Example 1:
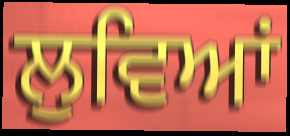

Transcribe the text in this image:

ਲੁਵਿਆਂ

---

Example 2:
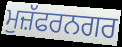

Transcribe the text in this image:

ਮੁਜ਼ੱਫਰਨਗਰ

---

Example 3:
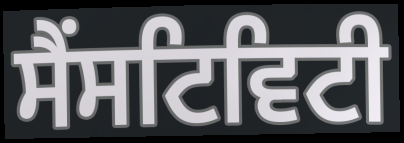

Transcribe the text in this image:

ਸੈਂਸਟਿਵਿਟੀ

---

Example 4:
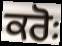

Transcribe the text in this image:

ਕਰੋਃ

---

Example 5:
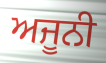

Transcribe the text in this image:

ਅਜੂਨੀ